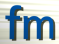
fm